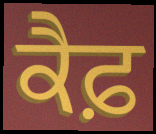
ਕੈਫ਼